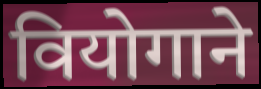
वियोगाने